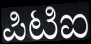
ಪಿಟಿಐ